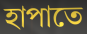
হাপাতে